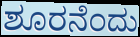
ಶೂರನೆಂದು